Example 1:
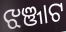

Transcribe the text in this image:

ଝଞ୍ଜାଟ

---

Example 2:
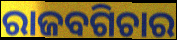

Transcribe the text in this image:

ରାଜବଗିଚାର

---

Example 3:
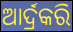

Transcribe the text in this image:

ଆର୍ଦ୍ରକରି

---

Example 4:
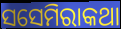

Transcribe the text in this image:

ସସେମିରାକଥା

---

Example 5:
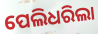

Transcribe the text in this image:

ପେଲିଧରିଲା